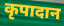
कृपादान